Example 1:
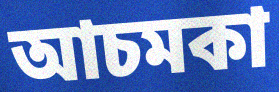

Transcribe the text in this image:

আচমকা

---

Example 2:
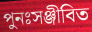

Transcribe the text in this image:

পুনঃসঞ্জীবিত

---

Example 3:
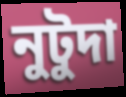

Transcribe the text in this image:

নুটুদা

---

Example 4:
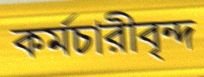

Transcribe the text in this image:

কর্মচারীবৃন্দ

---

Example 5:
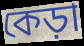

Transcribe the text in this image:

কেড়া